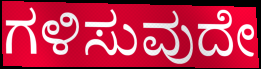
ಗಳಿಸುವುದೇ